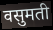
वसुमती